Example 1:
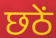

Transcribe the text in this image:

छठें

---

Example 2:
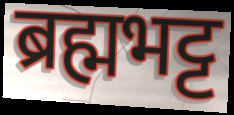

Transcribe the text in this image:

ब्रह्मभट्ट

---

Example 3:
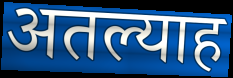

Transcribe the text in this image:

अतल्याह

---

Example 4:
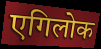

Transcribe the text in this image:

एगिलोक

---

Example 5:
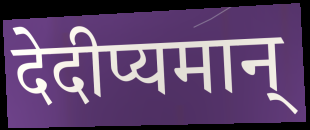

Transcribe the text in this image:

देदीप्यमान्